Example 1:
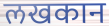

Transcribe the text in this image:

लखकान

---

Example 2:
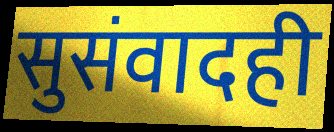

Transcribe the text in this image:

सुसंवादही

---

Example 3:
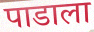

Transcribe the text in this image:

पाडाला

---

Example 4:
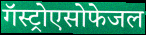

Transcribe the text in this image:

गॅस्ट्रोएसोफेजल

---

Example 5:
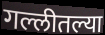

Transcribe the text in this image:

गल्लीतल्या